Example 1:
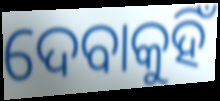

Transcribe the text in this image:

ଦେବାକୁହିଁ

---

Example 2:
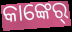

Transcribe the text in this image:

କାଙ୍କେର୍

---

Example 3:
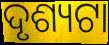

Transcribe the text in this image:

ଦୃଶ୍ୟଟା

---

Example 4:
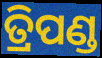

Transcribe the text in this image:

ତ୍ରିପଣ୍ଡ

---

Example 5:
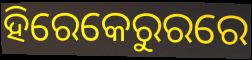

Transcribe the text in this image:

ହିରେକେରୁରରେ